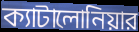
ক্যাটালোনিয়ার